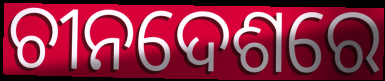
ଚୀନଦେଶରେ